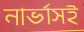
নার্ভাসই